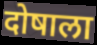
दोषाला